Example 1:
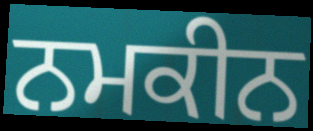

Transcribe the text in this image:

ਨਮਕੀਨ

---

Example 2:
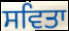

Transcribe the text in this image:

ਸਵਿਤਾ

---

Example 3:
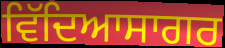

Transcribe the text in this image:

ਵਿੱਦਿਆਸਾਗਰ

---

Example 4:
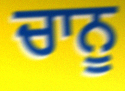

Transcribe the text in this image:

ਚਾਨੂ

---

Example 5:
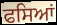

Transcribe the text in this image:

ਫਸਿਆਂ